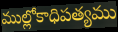
ముల్లోకాధిపత్యము